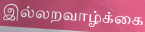
இல்லறவாழ்க்கை